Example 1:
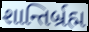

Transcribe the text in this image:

શાન્તિર્બ્રહ્મ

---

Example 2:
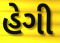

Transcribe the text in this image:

હેગી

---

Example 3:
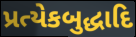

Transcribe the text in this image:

પ્રત્યેકબુદ્ધાદિ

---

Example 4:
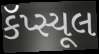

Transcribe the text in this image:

કૅપ્સ્યૂલ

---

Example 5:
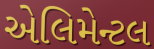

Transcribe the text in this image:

એલિમેન્ટલ